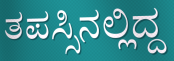
ತಪಸ್ಸಿನಲ್ಲಿದ್ದ